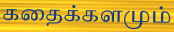
கதைக்களமும்